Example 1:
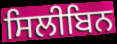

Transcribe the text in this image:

ਸਿਲੀਬਿਨ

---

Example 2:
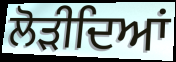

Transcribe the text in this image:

ਲੋੜੀਦਿਆਂ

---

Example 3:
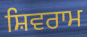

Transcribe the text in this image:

ਸ਼ਿਵਰਾਮ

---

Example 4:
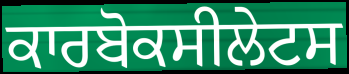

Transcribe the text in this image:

ਕਾਰਬੋਕਸੀਲੇਟਸ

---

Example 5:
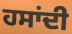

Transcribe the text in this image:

ਹਸਾਂਦੀ